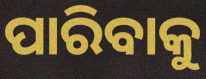
ପାରିବାକୁ